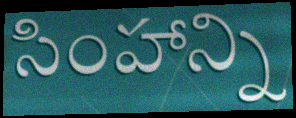
సింహాన్ని